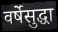
वर्षेसुद्धा